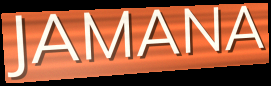
JAMANA